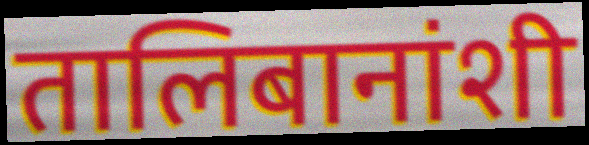
तालिबानांशी